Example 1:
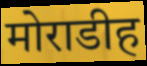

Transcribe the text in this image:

मोराडीह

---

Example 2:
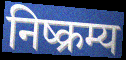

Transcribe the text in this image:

निष्क्रम्य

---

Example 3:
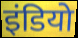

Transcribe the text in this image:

इंडियो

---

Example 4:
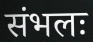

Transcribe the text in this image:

संभलः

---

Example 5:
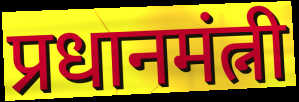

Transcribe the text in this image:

प्रधानमंत्नी